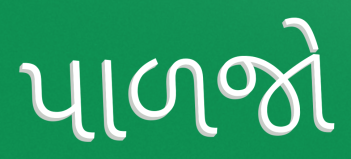
પાળજો